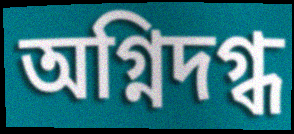
অগ্নিদগ্ধ